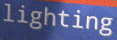
lighting